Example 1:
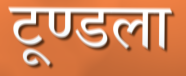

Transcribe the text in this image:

टूण्डला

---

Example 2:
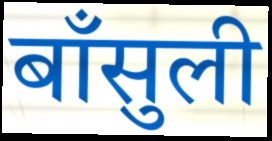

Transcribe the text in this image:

बाँसुली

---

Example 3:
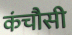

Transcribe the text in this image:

कंचौसी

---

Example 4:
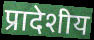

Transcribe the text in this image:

प्रादेशीय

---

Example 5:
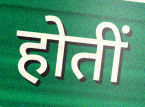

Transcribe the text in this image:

होतीं